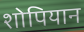
शोपियान